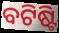
ବଟିଷ୍ଟି